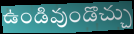
ఉండివుండొచ్చు